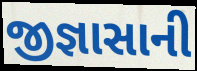
જીજ્ઞાસાની